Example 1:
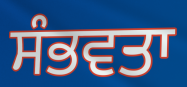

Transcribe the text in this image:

ਸੰਭਵਤਾ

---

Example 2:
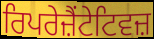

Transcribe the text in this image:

ਰਿਪਰੇਜ਼ੈਂਟੇਟਿਵਜ਼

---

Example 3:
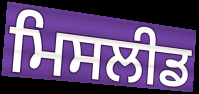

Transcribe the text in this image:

ਮਿਸਲੀਡ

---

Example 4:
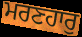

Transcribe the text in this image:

ਮਰਣਹਾਰੁ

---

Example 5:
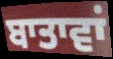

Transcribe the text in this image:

ਬਾਤਾਵਾਂ